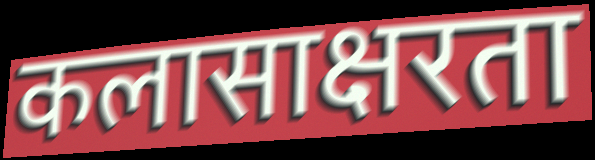
कलासाक्षरता